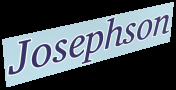
Josephson